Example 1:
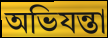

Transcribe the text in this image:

অভিযন্তা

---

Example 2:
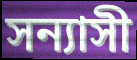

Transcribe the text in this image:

সন্যাসী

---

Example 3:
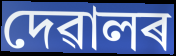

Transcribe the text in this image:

দেৱালৰ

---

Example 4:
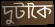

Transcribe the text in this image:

দুটাকৈ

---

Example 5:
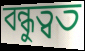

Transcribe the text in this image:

বন্ধুত্বত